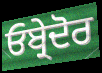
ਓਬ੍ਰੇਦੋਰ